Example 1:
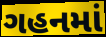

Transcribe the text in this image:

ગહનમાં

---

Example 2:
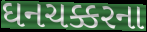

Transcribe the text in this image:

ઘનચક્કરના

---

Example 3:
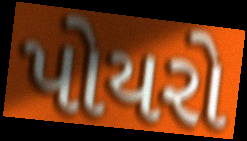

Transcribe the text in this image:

પોયરો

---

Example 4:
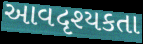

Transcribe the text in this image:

આવદૃશ્યકતા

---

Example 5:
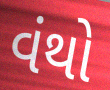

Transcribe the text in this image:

વંથો